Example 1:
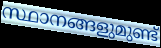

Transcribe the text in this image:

സ്ഥാനങ്ങളുമുണ്ട്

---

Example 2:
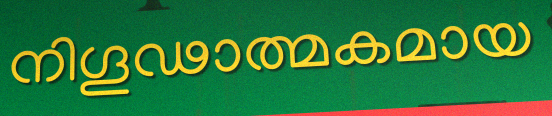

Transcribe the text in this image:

നിഗൂഢാത്മകമായ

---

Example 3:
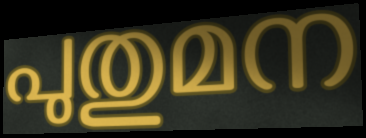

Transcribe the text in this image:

പുതുമന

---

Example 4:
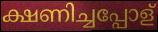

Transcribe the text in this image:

ക്ഷണിച്ചപ്പോള്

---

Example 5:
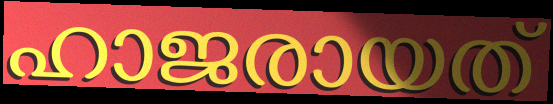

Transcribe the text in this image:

ഹാജരായത്